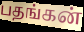
பதங்கன்